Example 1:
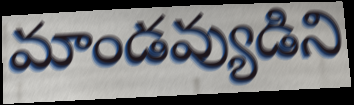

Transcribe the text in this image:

మాండవ్యుడిని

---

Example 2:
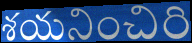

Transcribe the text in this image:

శయనించిరి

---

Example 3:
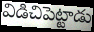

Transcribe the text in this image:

విడిచిపెట్టాడు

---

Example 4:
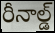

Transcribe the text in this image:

రీనాల్డ్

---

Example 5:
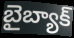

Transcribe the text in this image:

బైబ్యాక్